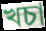
খচা